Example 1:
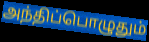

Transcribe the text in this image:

அந்திப்பொழுதும்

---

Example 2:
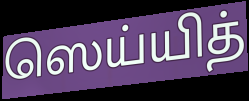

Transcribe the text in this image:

ஸெய்யித்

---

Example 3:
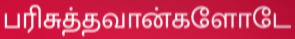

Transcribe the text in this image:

பரிசுத்தவான்களோடே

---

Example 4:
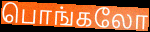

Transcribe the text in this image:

பொங்கலோ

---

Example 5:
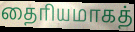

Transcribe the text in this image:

தைரியமாகத்